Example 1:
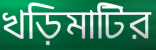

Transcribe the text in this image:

খড়িমাটির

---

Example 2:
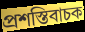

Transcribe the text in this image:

প্রশস্তিবাচক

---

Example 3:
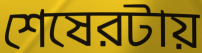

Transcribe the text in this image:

শেষেরটায়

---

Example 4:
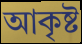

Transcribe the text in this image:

আকৃষ্ট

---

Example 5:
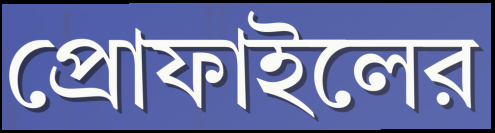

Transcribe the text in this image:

প্রোফাইলের